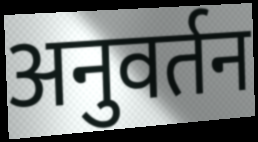
अनुवर्तन